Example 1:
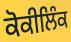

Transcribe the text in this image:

ਕੋਕੀਲਿੰਕ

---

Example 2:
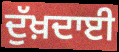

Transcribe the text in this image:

ਦੁੱਖ਼ਦਾਈ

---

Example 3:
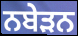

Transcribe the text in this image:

ਨਬੇੜਨ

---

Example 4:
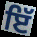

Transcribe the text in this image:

ਇੱ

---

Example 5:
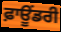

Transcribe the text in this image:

ਫ਼ਾਊਂਡਰੀ